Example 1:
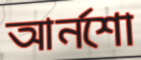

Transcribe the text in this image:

আর্নশো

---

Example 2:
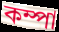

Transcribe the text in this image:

কম্পা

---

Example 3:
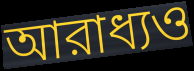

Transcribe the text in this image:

আরাধ্যও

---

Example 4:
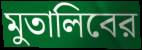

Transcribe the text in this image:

মুতালিবের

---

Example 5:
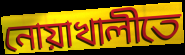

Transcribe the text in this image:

নোয়াখালীতে